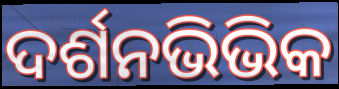
ଦର୍ଶନଭିଭିକ